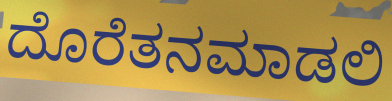
ದೊರೆತನಮಾಡಲಿ